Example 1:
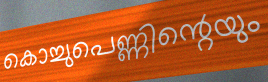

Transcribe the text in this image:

കൊച്ചുപെണ്ണിന്റെയും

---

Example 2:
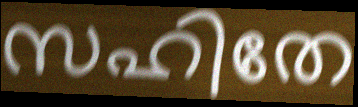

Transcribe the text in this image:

സഹിതേ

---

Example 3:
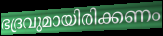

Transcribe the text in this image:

ഭദ്രവുമായിരിക്കണം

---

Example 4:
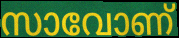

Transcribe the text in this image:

സാവോണ്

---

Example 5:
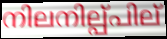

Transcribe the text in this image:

നിലനില്പ്പില്